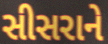
સીસરાને